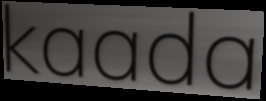
kaada